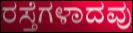
ರಸ್ತೆಗಳಾದವು